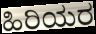
ಹಿರಿಯರ